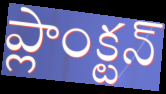
ప్లాంక్టన్